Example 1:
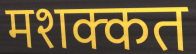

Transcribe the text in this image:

मशक्‍कत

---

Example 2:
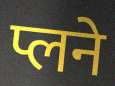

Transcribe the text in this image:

प्लने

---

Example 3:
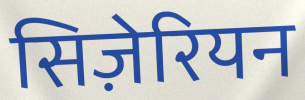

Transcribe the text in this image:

सिज़ेरियन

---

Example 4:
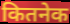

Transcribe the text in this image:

कितनेक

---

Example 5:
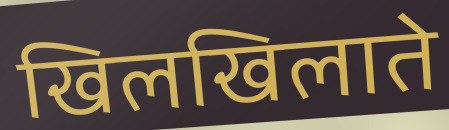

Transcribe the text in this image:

खिलखिलाते